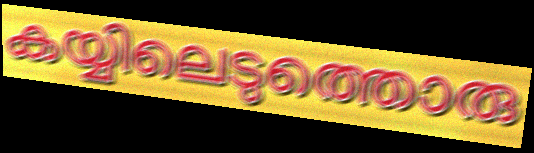
കയ്യിലെടുത്തൊരു